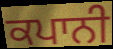
ਕਪਾਨੀ